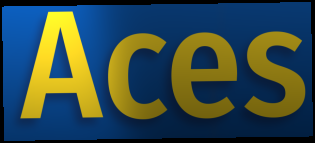
Aces